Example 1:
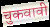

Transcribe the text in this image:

चुकवावी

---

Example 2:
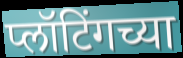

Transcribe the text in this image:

प्लॉटिंगच्या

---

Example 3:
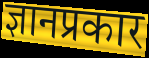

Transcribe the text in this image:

ज्ञानप्रकार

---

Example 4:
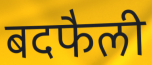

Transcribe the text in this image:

बदफैली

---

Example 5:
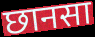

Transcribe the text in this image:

छानसा